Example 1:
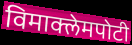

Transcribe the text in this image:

विमाक्लेमपोटी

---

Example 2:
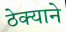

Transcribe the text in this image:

ठेक्याने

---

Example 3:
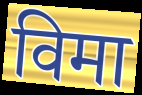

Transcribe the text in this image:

विमा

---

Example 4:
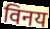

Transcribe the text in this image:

विनय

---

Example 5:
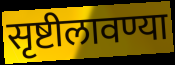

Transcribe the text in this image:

सृष्टीलावण्या